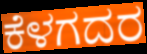
ಕೆಳಗದರ